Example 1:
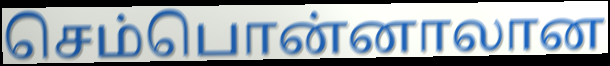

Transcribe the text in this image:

செம்பொன்னாலான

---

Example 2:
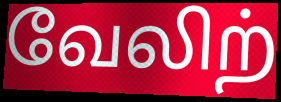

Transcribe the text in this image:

வேலிற்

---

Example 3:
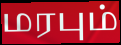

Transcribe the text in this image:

மரபும்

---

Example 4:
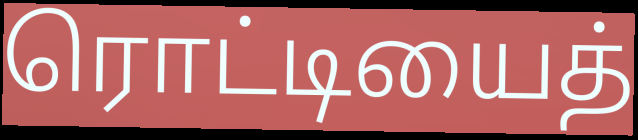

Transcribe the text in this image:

ரொட்டியைத்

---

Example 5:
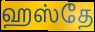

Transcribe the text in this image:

ஹஸ்தே